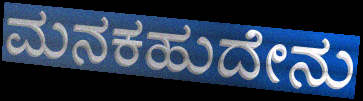
ಮನಕಹುದೇನು